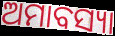
ଅମାବସ୍ୟା